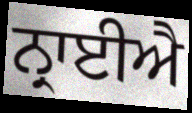
ਨ੍ਰਾਈਐ